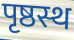
पृष्ठस्थ